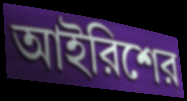
আইরিশের